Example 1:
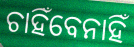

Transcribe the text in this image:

ଚାହିଁବେନାହିଁ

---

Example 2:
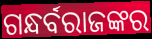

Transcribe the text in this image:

ଗନ୍ଧର୍ବରାଜଙ୍କର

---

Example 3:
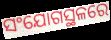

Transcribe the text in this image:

ସଂଯୋଗସ୍ଥଳରେ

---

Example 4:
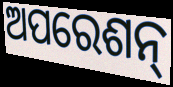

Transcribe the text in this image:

ଅପରେଶନ୍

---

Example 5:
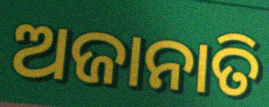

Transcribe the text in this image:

ଅଜାନାତି